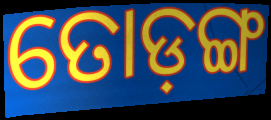
ତୋଡ଼ଙ୍ଗ